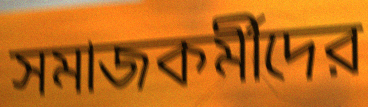
সমাজকর্মীদের